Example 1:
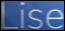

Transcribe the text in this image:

Lise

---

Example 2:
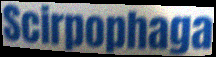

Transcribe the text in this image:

Scirpophaga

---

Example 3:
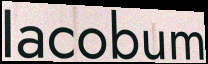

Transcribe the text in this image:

Iacobum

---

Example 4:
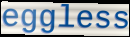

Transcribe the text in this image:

eggless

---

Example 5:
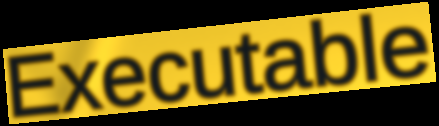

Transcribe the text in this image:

Executable